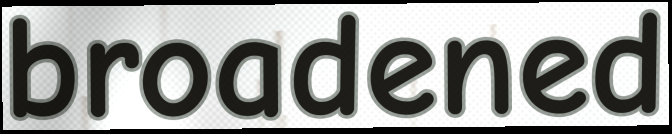
broadened